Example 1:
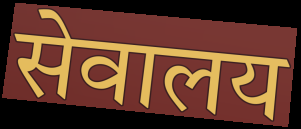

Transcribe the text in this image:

सेवालय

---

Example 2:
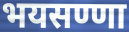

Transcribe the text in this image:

भयसण्णा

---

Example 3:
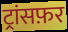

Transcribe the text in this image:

ट्रांसफ़र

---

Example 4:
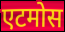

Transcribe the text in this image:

एटमोस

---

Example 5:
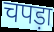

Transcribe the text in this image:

चपड़ा